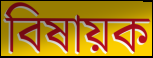
বিষায়ক